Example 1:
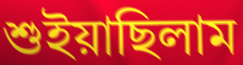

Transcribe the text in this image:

শুইয়াছিলাম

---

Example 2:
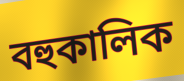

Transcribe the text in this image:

বহুকালিক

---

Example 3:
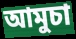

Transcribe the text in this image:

আমুচা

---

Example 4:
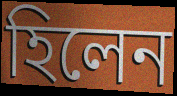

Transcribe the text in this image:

হিলেন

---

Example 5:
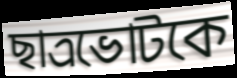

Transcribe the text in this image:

ছাত্রভোটকে